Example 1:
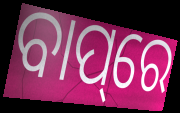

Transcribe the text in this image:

ବାପ୍‌ରେ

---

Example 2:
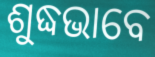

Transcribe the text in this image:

ଶୁଦ୍ଧଭାବେ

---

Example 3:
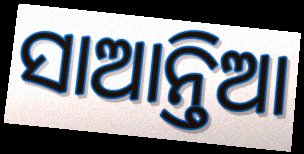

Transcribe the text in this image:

ସାଆନ୍ତିଆ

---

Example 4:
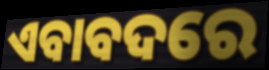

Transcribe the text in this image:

ଏବାବଦରେ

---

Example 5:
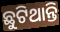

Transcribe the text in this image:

ଛୁଟିଥାନ୍ତି